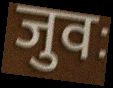
जुवः